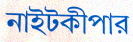
নাইটকীপার